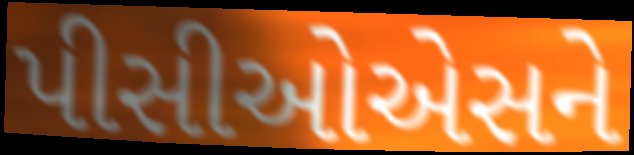
પીસીઓએસને